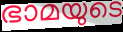
ഭാമയുടെ